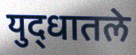
युद्धातले